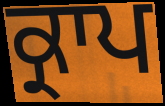
ਕ੍ਰਾਪ